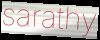
sarathy